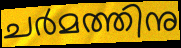
ചർമത്തിനു